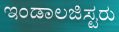
ಇಂಡಾಲಜಿಸ್ಟರು